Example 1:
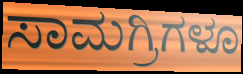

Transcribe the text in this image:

ಸಾಮಗ್ರಿಗಳೂ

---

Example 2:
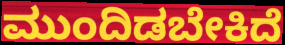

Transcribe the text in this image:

ಮುಂದಿಡಬೇಕಿದೆ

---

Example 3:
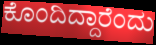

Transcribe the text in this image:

ಕೊಂದಿದ್ದಾರೆಂದು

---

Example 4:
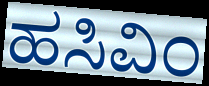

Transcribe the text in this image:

ಹಸಿವಿಂ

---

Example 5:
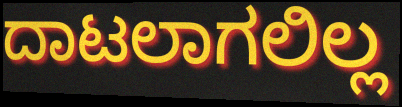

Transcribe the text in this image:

ದಾಟಲಾಗಲಿಲ್ಲ